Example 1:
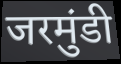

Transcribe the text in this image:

जरमुंडी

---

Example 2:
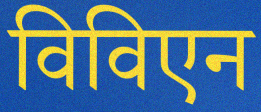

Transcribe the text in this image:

विविएन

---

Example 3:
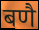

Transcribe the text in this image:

बणै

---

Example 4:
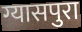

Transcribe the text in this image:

ग्यासपुरा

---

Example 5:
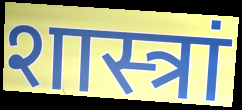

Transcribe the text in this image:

शास्त्रां